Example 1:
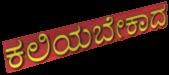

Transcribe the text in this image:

ಕಲಿಯಬೇಕಾದ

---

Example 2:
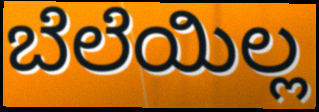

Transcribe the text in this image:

ಬೆಲೆಯಿಲ್ಲ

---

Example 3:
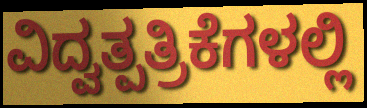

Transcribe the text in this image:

ವಿದ್ವತ್ಪತ್ರಿಕೆಗಳಲ್ಲಿ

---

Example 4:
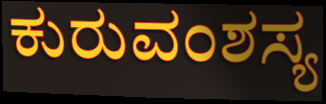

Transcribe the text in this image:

ಕುರುವಂಶಸ್ಯ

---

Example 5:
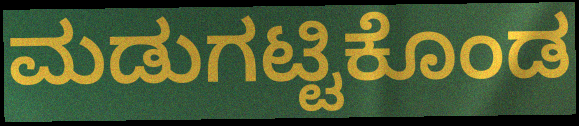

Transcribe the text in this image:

ಮಡುಗಟ್ಟಿಕೊಂಡ